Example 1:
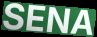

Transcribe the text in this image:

SENA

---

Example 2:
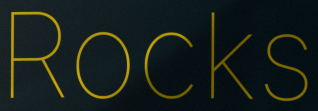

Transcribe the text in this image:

Rocks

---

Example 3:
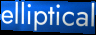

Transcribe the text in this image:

elliptical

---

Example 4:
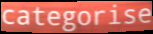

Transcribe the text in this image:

categorise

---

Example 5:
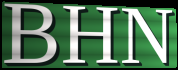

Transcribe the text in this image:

BHN